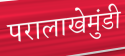
परालाखेमुंडी